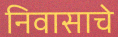
निवासाचे